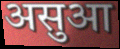
असुआ